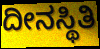
ದೀನಸ್ಥಿತಿ